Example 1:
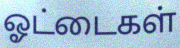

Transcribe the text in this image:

ஓட்டைகள்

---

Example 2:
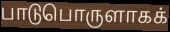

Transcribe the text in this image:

பாடுபொருளாகக்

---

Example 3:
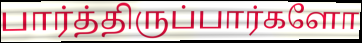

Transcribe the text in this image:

பார்த்திருப்பார்களோ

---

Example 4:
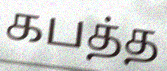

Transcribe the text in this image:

கபத்த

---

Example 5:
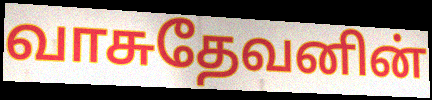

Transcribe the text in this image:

வாசுதேவனின்